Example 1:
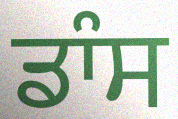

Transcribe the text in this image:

ਡਾੰਸ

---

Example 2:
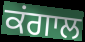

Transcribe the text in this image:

ਕਂਗਾਲ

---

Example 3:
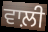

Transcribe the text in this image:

ਵਾਲ਼ੀ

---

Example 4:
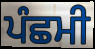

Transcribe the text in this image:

ਪੰਛਮੀ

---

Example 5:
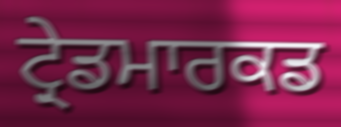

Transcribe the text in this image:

ਟ੍ਰੇਡਮਾਰਕਡ